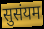
सुसंयम